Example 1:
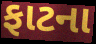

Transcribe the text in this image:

ફાટના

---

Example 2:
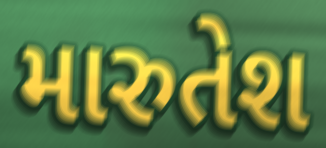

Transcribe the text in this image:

મારુતેશ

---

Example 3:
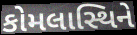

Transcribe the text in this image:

કોમલાસ્થિને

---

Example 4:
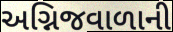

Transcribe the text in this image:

અગ્નિજવાળાની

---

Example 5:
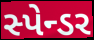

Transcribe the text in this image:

સ્પેન્ડર